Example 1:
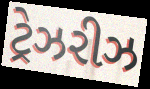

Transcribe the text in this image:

ટ્રેઝરીઝ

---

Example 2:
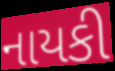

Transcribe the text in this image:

નાયકી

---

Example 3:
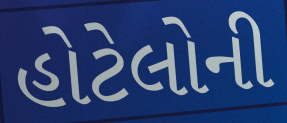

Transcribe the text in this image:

હોટેલોની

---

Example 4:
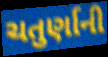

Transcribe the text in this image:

ચતુર્ણાની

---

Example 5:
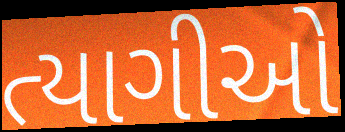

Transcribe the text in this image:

ત્યાગીઓ